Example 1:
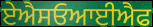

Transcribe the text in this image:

ਏਐਸਓਆਈਐਫ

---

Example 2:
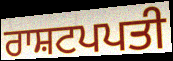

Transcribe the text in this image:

ਰਾਸ਼ਟਪਪਤੀ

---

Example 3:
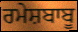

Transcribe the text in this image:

ਰਮੇਸ਼ਬਾਬੂ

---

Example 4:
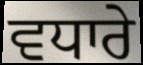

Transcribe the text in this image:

ਵਧਾਰੇ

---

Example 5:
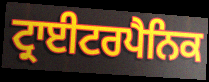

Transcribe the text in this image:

ਟ੍ਰਾਈਟਰਪੈਨਿਕ